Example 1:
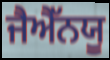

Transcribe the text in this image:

ਜੈਐੱਨਯੂ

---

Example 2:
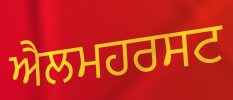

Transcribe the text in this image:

ਐਲਮਹਰਸਟ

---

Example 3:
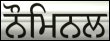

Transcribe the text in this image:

ਨੌਮਿਨਲ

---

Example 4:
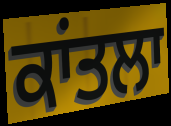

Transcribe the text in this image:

ਕਾਂਤਲਾ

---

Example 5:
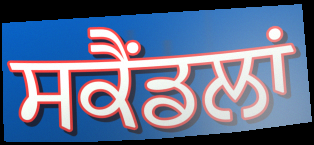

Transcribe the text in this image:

ਸਕੈਂਡਲਾਂ